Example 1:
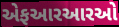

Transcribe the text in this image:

એફઆરઆરઓ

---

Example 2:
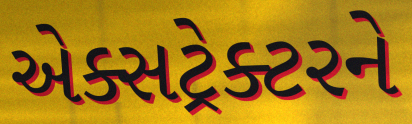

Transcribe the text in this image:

એક્સટ્રેક્ટરને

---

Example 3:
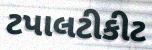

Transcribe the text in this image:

ટપાલટીકીટ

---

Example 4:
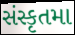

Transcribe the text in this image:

સંસ્કૃતમા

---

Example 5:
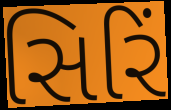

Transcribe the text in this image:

સિરિં